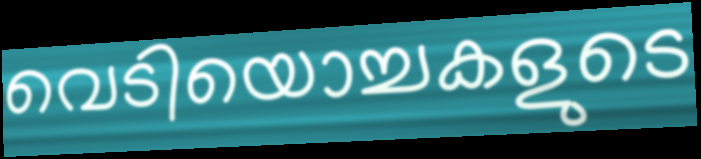
വെടിയൊച്ചകളുടെ